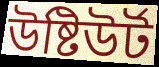
উষ্টিউৰ্ট